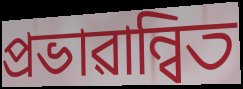
প্ৰভাৱান্বিত